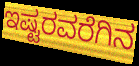
ಇಷ್ಟರವರೆಗಿನ